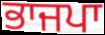
ਭਾਜਪਾ